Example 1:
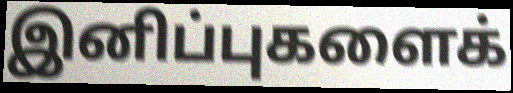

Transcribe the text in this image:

இனிப்புகளைக்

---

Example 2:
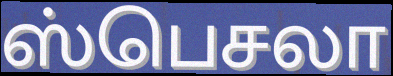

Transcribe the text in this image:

ஸ்பெசலா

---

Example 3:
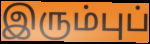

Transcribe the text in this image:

இரும்புப்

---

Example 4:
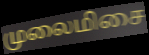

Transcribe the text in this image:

முலைமிசை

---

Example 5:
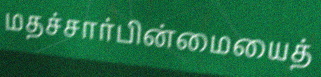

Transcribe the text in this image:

மதச்சார்பின்மையைத்